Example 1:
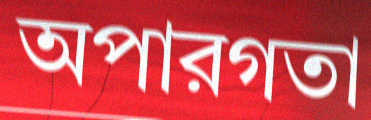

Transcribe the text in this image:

অপারগতা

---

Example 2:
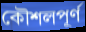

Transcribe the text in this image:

কৌশলপূর্ণ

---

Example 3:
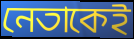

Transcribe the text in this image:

নেতাকেই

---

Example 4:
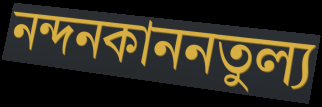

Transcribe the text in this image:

নন্দনকাননতুল্য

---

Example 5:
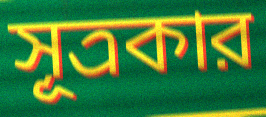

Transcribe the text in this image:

সূত্রকার